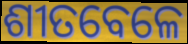
ଶୀତବେଳେ